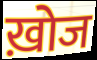
ख़ोज